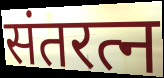
संतरत्न